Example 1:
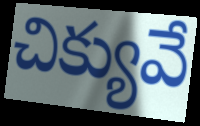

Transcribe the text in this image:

చిక్యువే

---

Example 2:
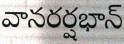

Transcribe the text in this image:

వానరర్షభాన్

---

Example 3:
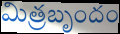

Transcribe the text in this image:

మిత్రబృందం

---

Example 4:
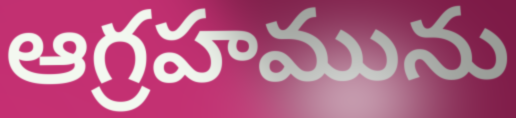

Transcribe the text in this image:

ఆగ్రహమును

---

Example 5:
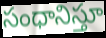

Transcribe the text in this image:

సంధానిస్తూ